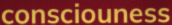
consciouness